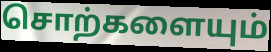
சொற்களையும்